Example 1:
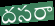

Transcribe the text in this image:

దసరా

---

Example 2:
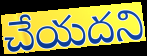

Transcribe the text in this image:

చేయదని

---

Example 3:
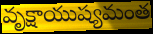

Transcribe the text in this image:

వృక్షాయుష్యమంత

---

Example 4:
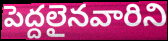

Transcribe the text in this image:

పెద్దలైనవారిని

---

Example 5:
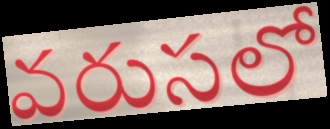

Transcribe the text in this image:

వరుసలో